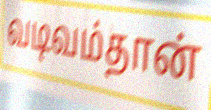
வடிவம்தான்